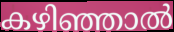
കഴിഞ്ഞാൽ